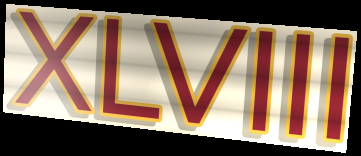
XLVIII